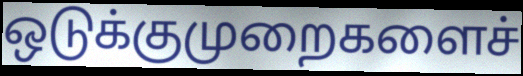
ஒடுக்குமுறைகளைச்